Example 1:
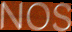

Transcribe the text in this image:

NOS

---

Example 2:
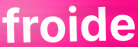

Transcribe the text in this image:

froide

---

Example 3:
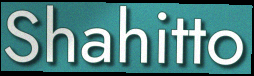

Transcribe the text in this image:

Shahitto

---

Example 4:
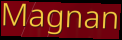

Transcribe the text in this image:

Magnan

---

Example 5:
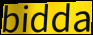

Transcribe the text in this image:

bidda